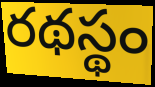
రథస్థం